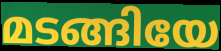
മടങ്ങിയേ